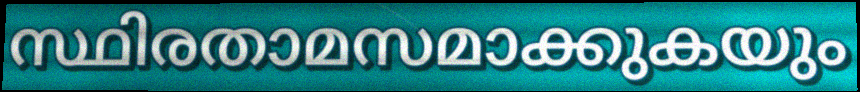
സ്ഥിരതാമസമാക്കുകയും